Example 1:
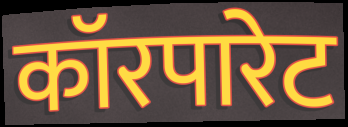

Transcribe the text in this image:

कॉरपारेट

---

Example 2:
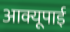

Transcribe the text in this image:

आक्यूपाई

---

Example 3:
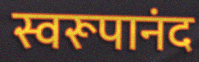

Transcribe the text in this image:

स्वरूपानंद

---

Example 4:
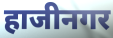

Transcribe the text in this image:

हाजीनगर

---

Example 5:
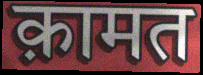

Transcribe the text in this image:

क़ामत